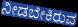
ನೀಡಬೇಕಿರುವ